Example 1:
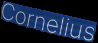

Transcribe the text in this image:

Cornelius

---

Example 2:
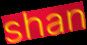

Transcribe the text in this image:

shan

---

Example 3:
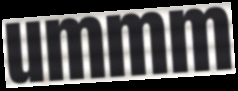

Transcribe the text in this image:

ummm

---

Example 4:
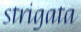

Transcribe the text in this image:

strigata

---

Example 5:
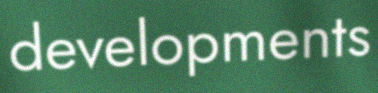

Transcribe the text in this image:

developments